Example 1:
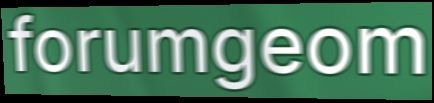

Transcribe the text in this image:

forumgeom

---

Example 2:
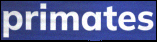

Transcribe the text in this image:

primates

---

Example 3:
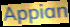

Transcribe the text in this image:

Appian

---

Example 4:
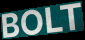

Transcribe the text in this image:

BOLT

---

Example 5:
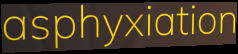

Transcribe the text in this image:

asphyxiation